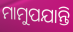
ମାମୁପଯାନ୍ତି